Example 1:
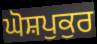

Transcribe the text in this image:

ਘੋਸ਼ਪੁਕੁਰ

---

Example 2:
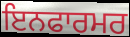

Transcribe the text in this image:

ਇਨਫਾਰਮਰ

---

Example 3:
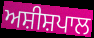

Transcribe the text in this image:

ਅਸ਼ੀਸ਼ਪਾਲ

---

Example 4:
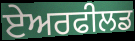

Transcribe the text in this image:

ਏਅਰਫੀਲਡ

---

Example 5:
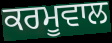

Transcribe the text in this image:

ਕਰਮੂਵਾਲ